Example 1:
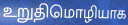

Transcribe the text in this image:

உறுதிமொழியாக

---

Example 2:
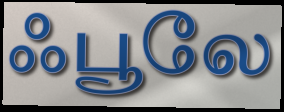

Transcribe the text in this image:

ஃபூலே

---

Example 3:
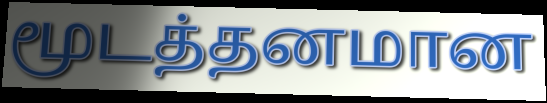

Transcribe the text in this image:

மூடத்தனமான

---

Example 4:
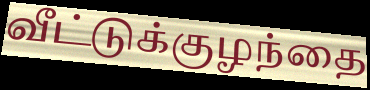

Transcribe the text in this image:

வீட்டுக்குழந்தை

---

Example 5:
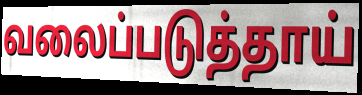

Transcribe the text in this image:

வலைப்படுத்தாய்